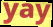
yay